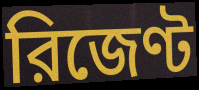
রিজেণ্ট